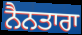
ਨੈਨਤਾਰਾ